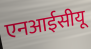
एनआईसीयू